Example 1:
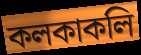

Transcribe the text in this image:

কলকাকলি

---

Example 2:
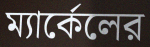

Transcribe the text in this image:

ম্যার্কেলের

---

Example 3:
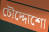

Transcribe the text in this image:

চৌদ্দোশো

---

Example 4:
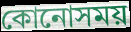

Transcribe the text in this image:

কোনোসময়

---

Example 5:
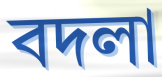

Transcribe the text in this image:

বদলা